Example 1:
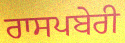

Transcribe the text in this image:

ਰਾਸਪਬੇਰੀ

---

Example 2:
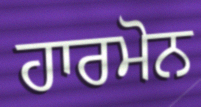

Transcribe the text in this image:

ਹਾਰਮੋਨ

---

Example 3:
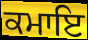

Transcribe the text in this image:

ਕਮਾਇ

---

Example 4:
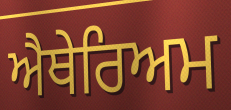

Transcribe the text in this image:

ਐਥੇਰਿਅਮ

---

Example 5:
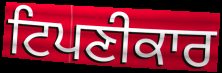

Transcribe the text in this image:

ਟਿਪਣੀਕਾਰ